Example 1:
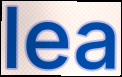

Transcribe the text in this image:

lea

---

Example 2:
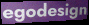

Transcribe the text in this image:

egodesign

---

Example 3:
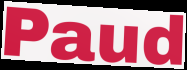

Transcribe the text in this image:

Paud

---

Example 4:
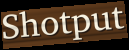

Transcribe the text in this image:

Shotput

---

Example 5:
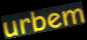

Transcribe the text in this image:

urbem